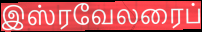
இஸ்ரவேலரைப்